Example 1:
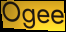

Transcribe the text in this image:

Ogee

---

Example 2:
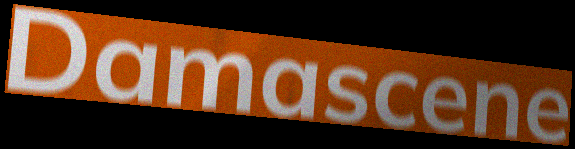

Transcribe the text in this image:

Damascene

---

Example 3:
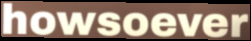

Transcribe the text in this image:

howsoever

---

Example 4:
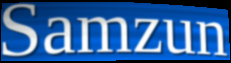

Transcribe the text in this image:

Samzun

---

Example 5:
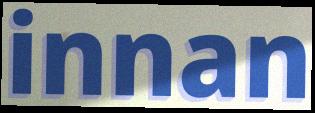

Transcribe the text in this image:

innan